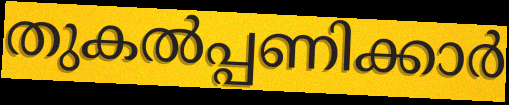
തുകൽപ്പണിക്കാർ